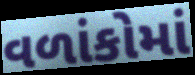
વળાંકોમાં